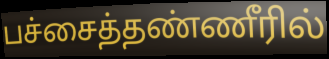
பச்சைத்தண்ணீரில்